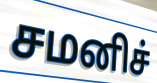
சமனிச்